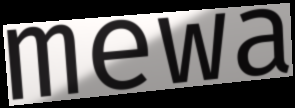
mewa